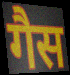
गैस